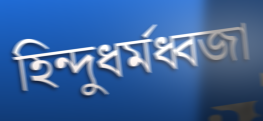
হিন্দুধর্মধ্বজা